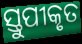
ସ୍ତୁପୀକୃତ